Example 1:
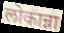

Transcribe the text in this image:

लोकान्ना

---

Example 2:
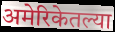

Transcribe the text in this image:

अमेरिकेतल्या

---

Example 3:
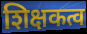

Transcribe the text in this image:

शिक्षकत्व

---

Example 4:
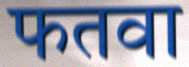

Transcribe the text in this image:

फतवा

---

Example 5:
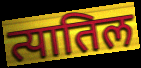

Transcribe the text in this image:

त्यातिल